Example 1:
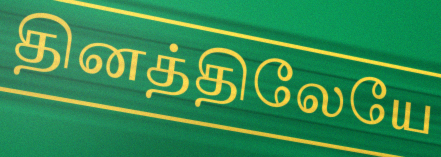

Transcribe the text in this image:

தினத்திலேயே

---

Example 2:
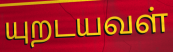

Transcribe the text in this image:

யுறடயவள்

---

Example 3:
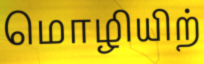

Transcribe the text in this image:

மொழியிற்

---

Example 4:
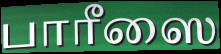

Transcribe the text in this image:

பாரீஸை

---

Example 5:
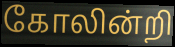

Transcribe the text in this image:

கோலின்றி